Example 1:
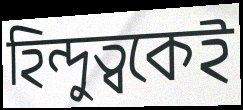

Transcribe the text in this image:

হিন্দুত্বকেই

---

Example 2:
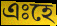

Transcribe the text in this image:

এঃহে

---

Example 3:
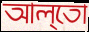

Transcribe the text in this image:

আল্‌তো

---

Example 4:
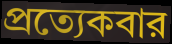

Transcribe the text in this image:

প্রত্যেকবার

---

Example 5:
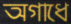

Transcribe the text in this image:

অগাধে